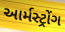
આર્મસ્ટ્રોંગ